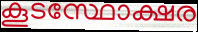
കൂടസ്ഥോക്ഷര